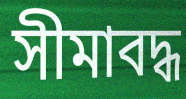
সীমাবদ্ধ